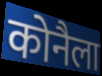
कोनैला